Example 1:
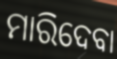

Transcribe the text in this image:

ମାରିଦେବା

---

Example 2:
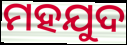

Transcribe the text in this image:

ମହଯୁଦ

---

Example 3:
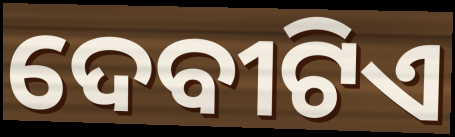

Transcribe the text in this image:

ଦେବୀଟିଏ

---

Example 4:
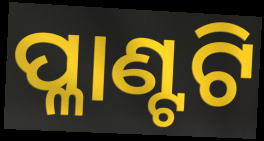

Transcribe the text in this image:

ପ୍ଳାଣ୍ଟଟି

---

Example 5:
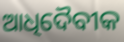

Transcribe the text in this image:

ଆଧିଦୈବୀକ